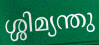
ശ്ശിമ്യന്തു